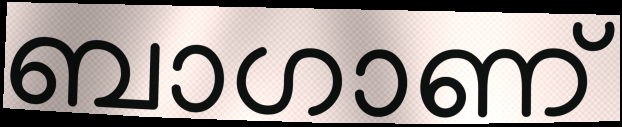
ബാഗാണ്